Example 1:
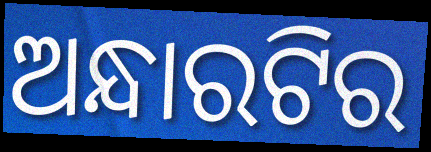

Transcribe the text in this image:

ଅନ୍ଧାରଟିର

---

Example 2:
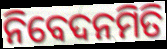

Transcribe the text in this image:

ନିବେଦନମିତି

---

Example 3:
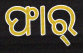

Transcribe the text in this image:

ଫାର୍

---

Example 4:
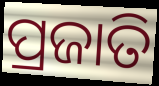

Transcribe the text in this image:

ପ୍ରଜାତି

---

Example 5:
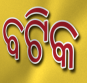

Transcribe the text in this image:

ବଟିକ